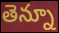
తెన్నూ